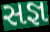
સજ્ઞ